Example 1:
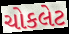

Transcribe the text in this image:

ચોકલેટ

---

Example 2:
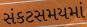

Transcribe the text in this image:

સંકટસમયમાં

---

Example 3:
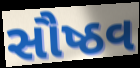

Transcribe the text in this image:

સૌષ્ઠવ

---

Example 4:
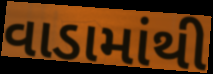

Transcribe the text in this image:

વાડામાંથી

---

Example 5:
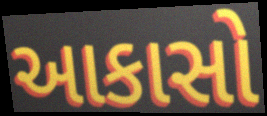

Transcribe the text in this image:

આકાસો